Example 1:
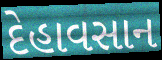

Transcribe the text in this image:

દેહાવસાન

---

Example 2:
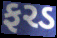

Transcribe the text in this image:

ફરડ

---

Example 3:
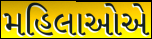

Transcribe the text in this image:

મહિલાઓએ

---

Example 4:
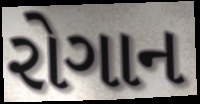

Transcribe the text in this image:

રોગાન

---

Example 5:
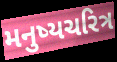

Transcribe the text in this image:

મનુષ્યચરિત્ર